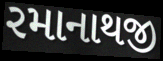
રમાનાથજી